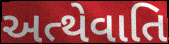
અત્થેવાતિ